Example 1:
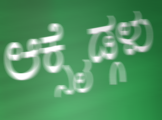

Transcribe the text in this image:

ಆಕ್ಸೈಡ್ಗಳು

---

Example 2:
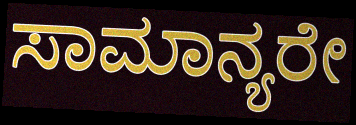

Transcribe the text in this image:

ಸಾಮಾನ್ಯರೇ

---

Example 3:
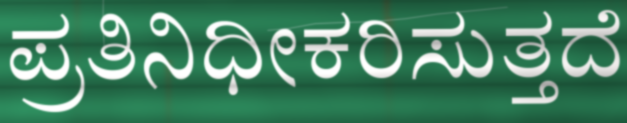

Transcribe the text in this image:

ಪ್ರತಿನಿಧೀಕರಿಸುತ್ತದೆ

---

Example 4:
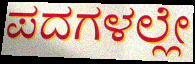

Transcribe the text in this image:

ಪದಗಳಲ್ಲೇ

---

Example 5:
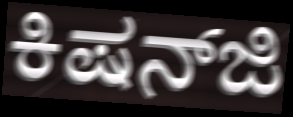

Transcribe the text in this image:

ಕಿಷನ್‌ಜಿ